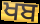
ਖਬ